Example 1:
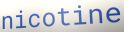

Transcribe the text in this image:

nicotine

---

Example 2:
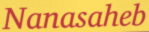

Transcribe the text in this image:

Nanasaheb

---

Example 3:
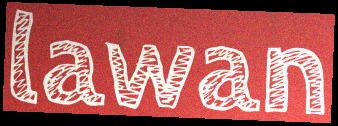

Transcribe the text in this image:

lawan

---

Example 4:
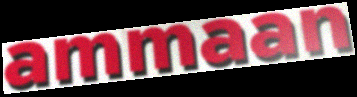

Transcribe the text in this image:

ammaan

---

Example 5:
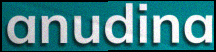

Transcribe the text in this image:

anudina